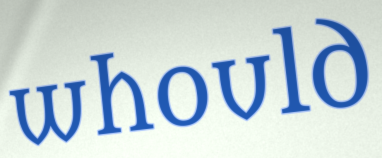
whould